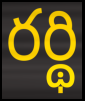
రర్థి